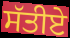
ਸੱਤੀਏ